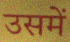
उसमें